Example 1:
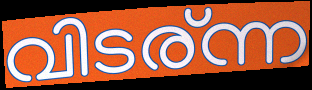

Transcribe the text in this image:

വിടര്ന്ന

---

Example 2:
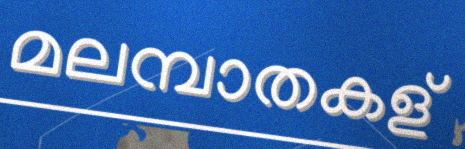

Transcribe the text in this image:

മലമ്പാതകള്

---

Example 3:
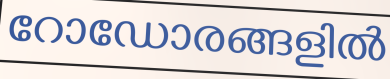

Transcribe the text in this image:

റോഡോരങ്ങളിൽ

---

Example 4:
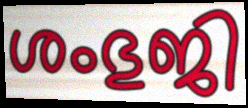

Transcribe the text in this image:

ശംഭുജി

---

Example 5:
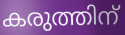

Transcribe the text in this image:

കരുത്തിന്